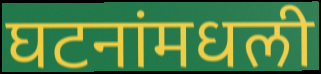
घटनांमधली